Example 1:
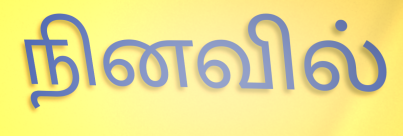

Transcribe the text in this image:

நினவில்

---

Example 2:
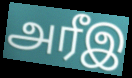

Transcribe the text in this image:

அரீஇ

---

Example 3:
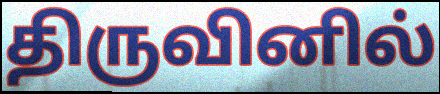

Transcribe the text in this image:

திருவினில்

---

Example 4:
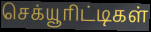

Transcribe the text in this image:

செக்யூரிட்டிகள்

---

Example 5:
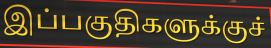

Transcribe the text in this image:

இப்பகுதிகளுக்குச்